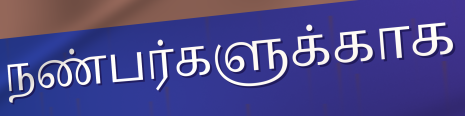
நண்பர்களுக்காக